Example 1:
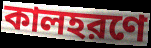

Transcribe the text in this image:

কালহরণে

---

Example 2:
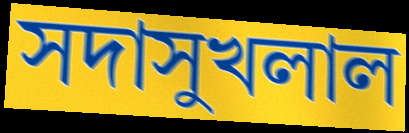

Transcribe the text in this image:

সদাসুখলাল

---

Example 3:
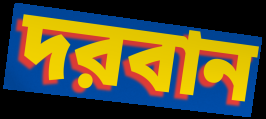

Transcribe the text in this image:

দরবান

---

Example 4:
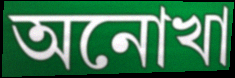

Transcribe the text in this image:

অনোখা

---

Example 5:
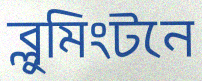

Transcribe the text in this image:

ব্লুমিংটনে